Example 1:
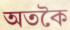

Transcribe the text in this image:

অতকৈ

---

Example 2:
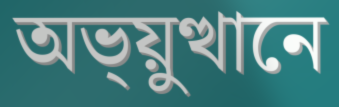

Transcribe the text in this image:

অভ্য়ুত্থানে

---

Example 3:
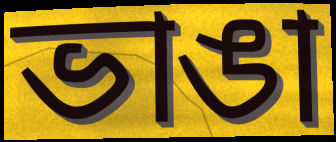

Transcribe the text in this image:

ভাঙা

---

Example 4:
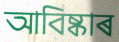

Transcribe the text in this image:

আবিষ্কাৰ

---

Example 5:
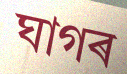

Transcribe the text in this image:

ঘাগৰ